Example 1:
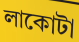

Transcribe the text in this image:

লাকোটা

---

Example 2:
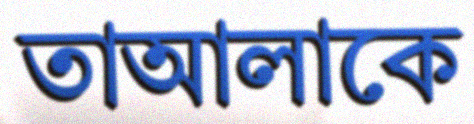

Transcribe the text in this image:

তাআলাকে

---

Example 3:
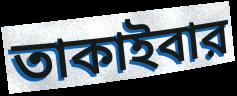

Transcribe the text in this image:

তাকাইবার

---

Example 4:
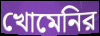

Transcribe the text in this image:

খোমেনির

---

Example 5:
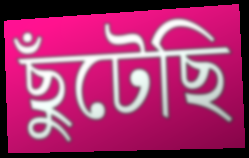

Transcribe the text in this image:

ছুঁটেছি